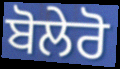
ਬੋਲੇਰੋ